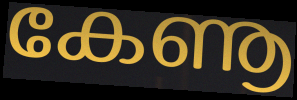
കേണൂ